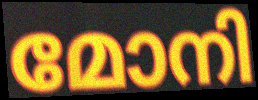
മോനി